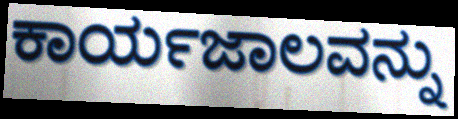
ಕಾರ್ಯಜಾಲವನ್ನು